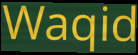
Waqid